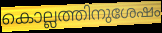
കൊല്ലത്തിനുശേഷം